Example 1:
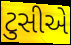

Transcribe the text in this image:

ટુસીએ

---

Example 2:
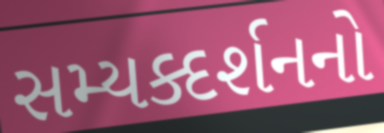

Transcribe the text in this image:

સમ્યક્દર્શનનો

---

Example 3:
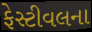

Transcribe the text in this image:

ફેસ્ટીવલના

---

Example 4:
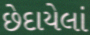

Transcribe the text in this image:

છેદાયેલાં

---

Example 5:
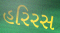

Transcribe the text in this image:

હરિરસ